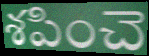
శపించె